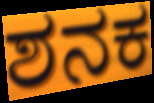
ಶನಕ